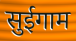
सुईगाम